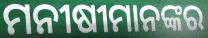
ମନୀଷୀମାନଙ୍କର